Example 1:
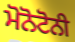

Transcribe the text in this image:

ਮੋਨੋਟੋਨੀ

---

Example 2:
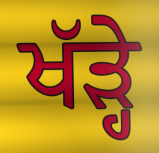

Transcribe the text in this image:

ਖੱੜ੍ਹੇ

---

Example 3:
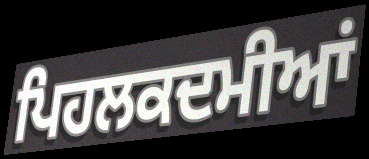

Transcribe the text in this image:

ਪਿਹਲਕਦਮੀਆਂ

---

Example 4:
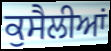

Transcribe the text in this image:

ਕੁਸੈਲੀਆਂ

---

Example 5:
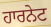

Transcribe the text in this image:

ਹਾਰਨੇਟ